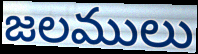
జలములు